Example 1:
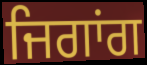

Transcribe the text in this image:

ਜਿਗਾਂਗ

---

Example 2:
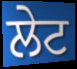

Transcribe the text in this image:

ਲੇਟ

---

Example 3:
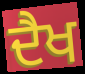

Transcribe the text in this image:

ਦੈਖ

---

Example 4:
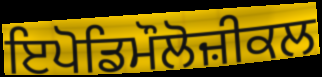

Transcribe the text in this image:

ਇਪੋਡਿਮੌਲੋਜ਼ੀਕਲ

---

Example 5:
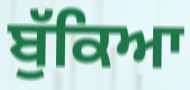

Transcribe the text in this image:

ਬੁੱਕਿਆ